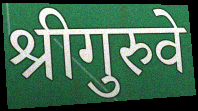
श्रीगुरुवे